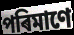
পৰিমাণে